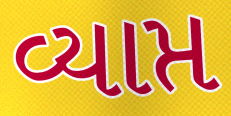
વ્યાપ્ત